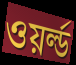
ওয়র্ল্ড